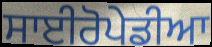
ਸਾਈਰੋਪੇਡੀਆ